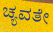
ಚ್ಯವತೇ